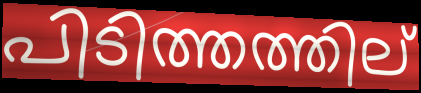
പിടിത്തത്തില്